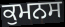
ਕੁਮਨਸ